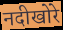
नदीखोरे